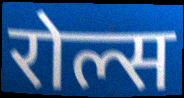
रोल्स